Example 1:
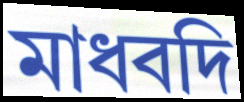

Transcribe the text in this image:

মাধবদি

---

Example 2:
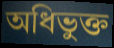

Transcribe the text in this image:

অধিভুক্ত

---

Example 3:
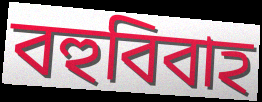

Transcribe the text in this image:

বহুবিবাহ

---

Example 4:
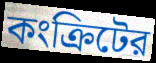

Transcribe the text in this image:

কংক্রিটের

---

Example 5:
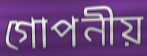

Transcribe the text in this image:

গোপনীয়